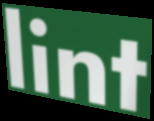
lint